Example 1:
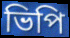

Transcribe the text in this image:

ভিপি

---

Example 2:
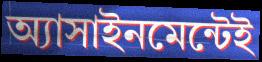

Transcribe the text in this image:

অ্যাসাইনমেন্টেই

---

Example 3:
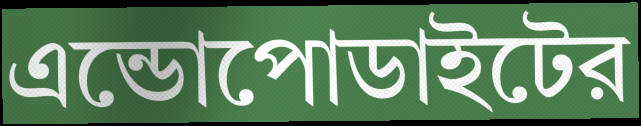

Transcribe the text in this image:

এন্ডোপোডাইটের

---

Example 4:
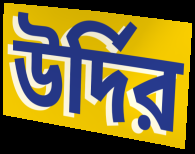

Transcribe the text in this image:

উর্দির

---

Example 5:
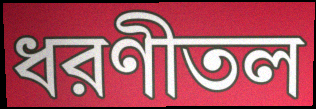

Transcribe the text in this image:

ধরণীতল